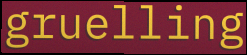
gruelling